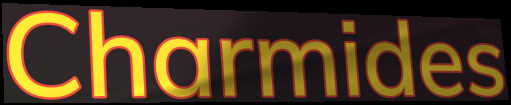
Charmides